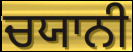
ਚਯਾਨੀ